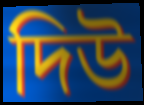
দিউ